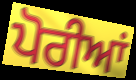
ਪੋਰੀਆਂ